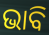
ଭାବି